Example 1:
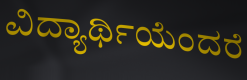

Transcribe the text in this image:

ವಿದ್ಯಾರ್ಥಿಯೆಂದರೆ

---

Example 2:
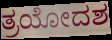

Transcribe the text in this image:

ತ್ರಯೋದಶ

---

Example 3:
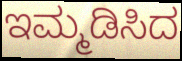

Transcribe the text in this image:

ಇಮ್ಮಡಿಸಿದ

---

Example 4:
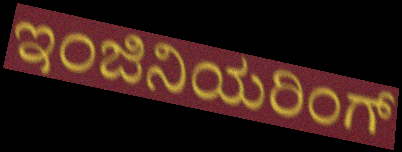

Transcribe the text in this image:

ಇಂಜಿನಿಯರಿಂಗ್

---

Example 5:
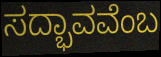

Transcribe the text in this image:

ಸದ್ಭಾವವೆಂಬ